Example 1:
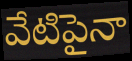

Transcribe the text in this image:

వేటిపైనా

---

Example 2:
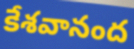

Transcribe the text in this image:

కేశవానంద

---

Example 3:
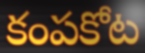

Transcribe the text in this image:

కంపకోట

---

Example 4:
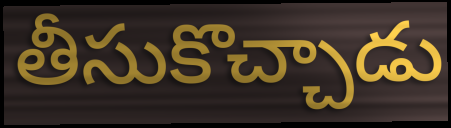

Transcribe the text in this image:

తీసుకొచ్చాడు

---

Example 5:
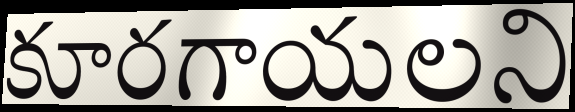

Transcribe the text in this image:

కూరగాయలని